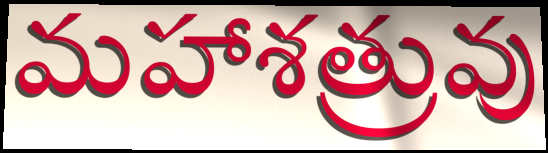
మహాశత్రువు